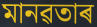
মানৱতাৰ